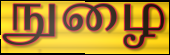
நுழை